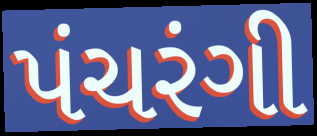
પંચરંગી